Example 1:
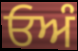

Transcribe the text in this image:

ਓਅੰ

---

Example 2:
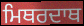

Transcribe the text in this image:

ਮਿਥਰਦਾਥ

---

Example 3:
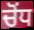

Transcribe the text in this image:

ਚੋਂਧ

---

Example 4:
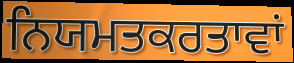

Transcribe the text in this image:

ਨਿਯਮਤਕਰਤਾਵਾਂ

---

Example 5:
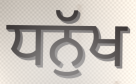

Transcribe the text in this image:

ਧਨੁੱਖ